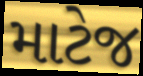
માટેજ